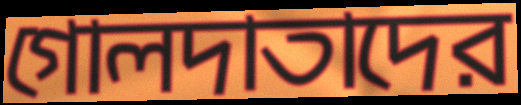
গোলদাতাদের